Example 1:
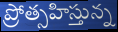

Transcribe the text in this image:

ప్రోత్సహిస్తున్న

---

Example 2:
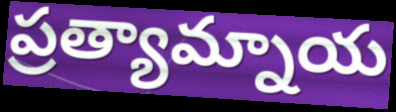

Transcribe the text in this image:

ప్రత్యామ్నాయ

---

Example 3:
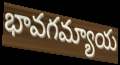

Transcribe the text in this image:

భావగమ్యాయ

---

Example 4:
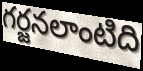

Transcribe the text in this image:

గర్జనలాంటిది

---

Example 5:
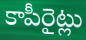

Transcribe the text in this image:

కాపీరైట్లు